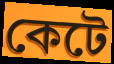
কেটে